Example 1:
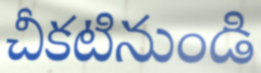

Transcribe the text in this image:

చీకటినుండి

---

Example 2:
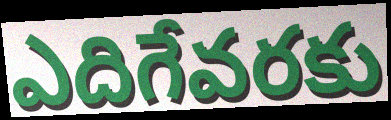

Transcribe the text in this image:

ఎదిగేవరకు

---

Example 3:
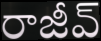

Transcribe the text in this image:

రాజీవ్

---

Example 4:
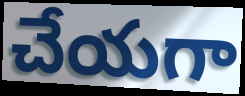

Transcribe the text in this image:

చేయగా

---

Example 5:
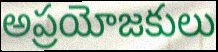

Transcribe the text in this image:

అప్రయోజకులు